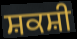
ਸ਼ਕਸ਼ੀ